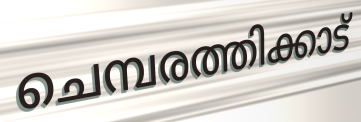
ചെമ്പരത്തിക്കാട്